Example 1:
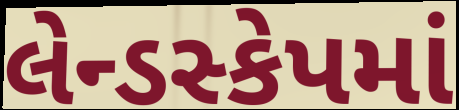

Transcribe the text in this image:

લેન્ડસ્કેપમાં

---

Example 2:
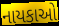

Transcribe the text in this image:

નાયકાઓ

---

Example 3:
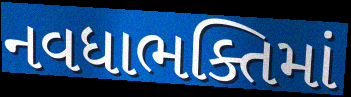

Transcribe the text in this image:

નવધાભક્તિમાં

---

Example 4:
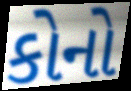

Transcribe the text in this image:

કોનો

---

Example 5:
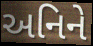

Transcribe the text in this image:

અનિને